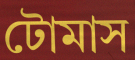
টোমাস